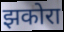
झकोरा